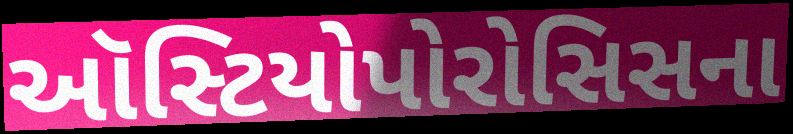
ઑસ્ટિયોપોરોસિસના